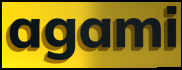
agami